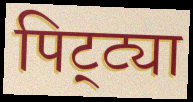
पिट्ट्या